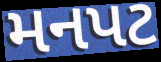
મનપટ